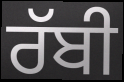
ਰੱਬੀ